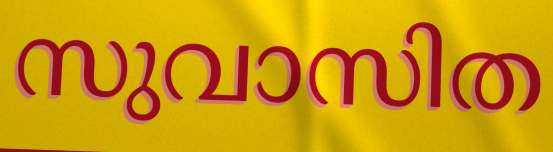
സുവാസിത